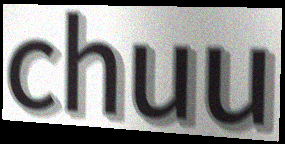
chuu